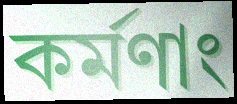
কর্মণাং